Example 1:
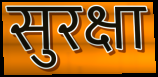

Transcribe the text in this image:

सुरक्षा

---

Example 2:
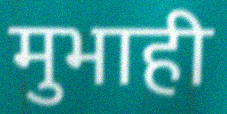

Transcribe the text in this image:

मुभाही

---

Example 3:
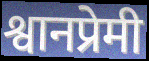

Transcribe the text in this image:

श्वानप्रेमी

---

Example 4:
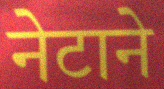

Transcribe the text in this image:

नेटाने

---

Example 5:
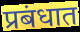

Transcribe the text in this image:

प्रबंधात